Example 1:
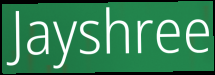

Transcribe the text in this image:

Jayshree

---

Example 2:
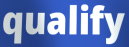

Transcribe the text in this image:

qualify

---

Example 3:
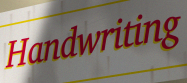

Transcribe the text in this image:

Handwriting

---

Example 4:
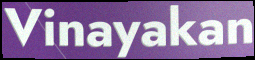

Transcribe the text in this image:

Vinayakan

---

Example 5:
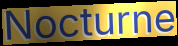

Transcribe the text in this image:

Nocturne